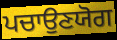
ਪਚਾਉਣਯੋਗ